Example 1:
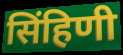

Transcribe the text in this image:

सिंहिणी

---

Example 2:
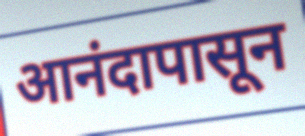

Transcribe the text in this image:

आनंदापासून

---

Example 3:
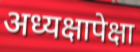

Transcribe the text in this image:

अध्यक्षापेक्षा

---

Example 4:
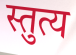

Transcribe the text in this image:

स्तुत्य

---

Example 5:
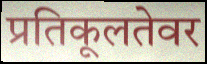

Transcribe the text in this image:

प्रतिकूलतेवर